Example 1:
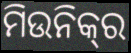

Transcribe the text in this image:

ମିଉନିକ୍‌ର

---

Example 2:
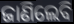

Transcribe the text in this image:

ଜାଣିଲେବି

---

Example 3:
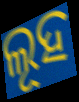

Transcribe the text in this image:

ଲୂହ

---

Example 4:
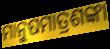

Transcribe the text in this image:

ମାନୁଷମାତ୍ରଶଙ୍କା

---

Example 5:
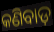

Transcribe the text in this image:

କଣିବାଡ଼